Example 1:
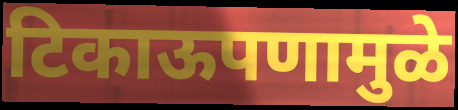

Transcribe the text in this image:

टिकाऊपणामुळे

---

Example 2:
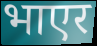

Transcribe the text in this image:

भाएर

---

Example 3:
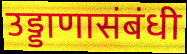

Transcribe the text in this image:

उड्डाणासंबंधी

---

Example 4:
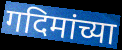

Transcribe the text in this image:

गदिमांच्या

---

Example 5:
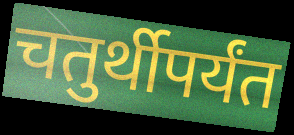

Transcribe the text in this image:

चतुर्थीपर्यंत